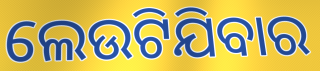
ଲେଉଟିଯିବାର